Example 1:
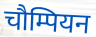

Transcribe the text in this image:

चौम्पियन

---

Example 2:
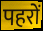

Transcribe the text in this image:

पहरों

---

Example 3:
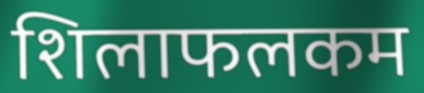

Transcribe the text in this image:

शिलाफलकम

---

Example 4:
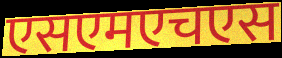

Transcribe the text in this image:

एसएमएचएस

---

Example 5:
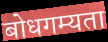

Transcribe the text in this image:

बोधगम्यता